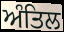
ਅੰਤਿਲ